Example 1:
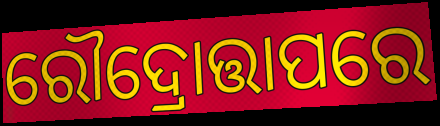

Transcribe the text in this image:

ରୌଦ୍ରୋତ୍ତାପରେ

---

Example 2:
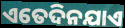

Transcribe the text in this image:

ଏତେଦିନଯାଏ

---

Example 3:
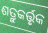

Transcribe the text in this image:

ଶତ୍ରୁକର୍ତ୍ତୃକ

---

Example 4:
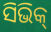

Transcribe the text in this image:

ସିଭିକ୍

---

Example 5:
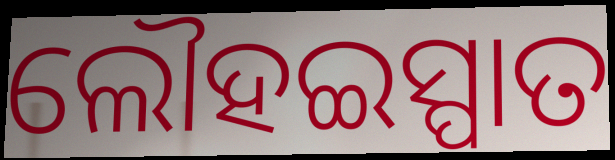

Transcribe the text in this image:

ଲୌହଇସ୍ପାତ